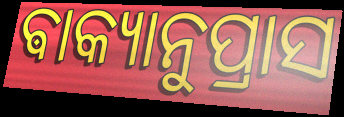
ଵାକ୍ୟାନୁପ୍ରାସ